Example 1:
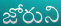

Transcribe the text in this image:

జోరుని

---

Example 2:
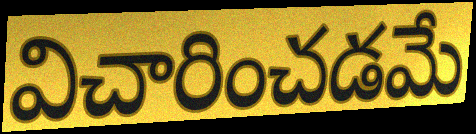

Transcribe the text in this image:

విచారించడమే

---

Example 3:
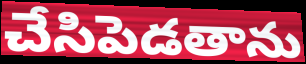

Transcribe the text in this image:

చేసిపెడతాను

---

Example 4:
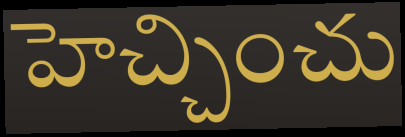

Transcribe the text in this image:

హెచ్చించు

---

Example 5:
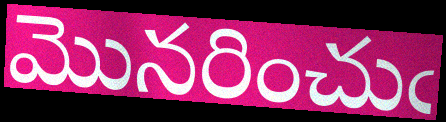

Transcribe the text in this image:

మొనరించుఁ